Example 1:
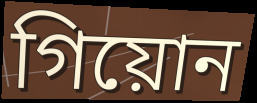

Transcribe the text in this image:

গিয়োন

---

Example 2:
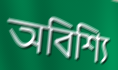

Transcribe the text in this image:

অবিশ্যি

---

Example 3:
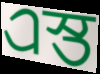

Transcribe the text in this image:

এস্ত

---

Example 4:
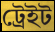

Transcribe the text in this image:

ট্রেইট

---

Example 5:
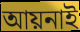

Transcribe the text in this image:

আয়নাই